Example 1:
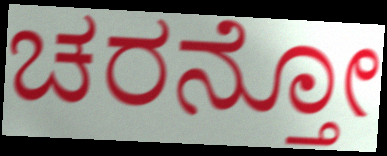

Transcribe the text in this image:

ಚರನ್ತೋ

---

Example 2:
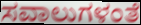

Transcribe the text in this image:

ಸವಾಲುಗಳಂತೆ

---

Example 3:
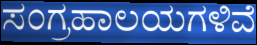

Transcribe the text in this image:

ಸಂಗ್ರಹಾಲಯಗಳಿವೆ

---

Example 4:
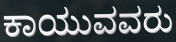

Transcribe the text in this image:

ಕಾಯುವವರು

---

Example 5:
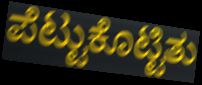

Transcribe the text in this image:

ಪೆಟ್ಟುಕೊಟ್ಟಿತು